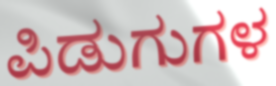
ಪಿಡುಗುಗಳ